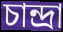
চান্দ্রা